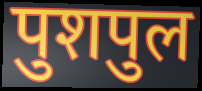
पुशपुल